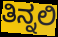
ತಿನ್ನಲಿ